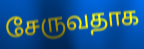
சேருவதாக